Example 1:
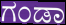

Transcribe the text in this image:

ಗಂಡಾ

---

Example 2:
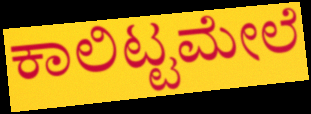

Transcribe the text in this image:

ಕಾಲಿಟ್ಟಮೇಲೆ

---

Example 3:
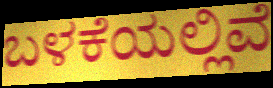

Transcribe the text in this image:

ಬಳಕೆಯಲ್ಲಿವೆ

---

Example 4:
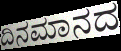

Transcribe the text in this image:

ದಿನಮಾನದ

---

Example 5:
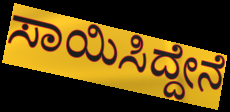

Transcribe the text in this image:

ಸಾಯಿಸಿದ್ದೇನೆ